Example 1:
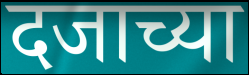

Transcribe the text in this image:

दजाच्या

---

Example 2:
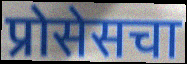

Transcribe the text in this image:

प्रोसेसचा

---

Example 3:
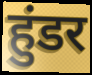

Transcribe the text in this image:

हुंडर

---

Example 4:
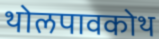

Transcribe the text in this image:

थोलपावकोथ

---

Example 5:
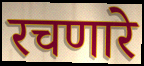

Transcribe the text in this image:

रचणारे